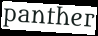
panther